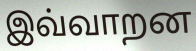
இவ்வாறன